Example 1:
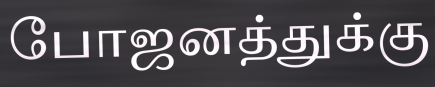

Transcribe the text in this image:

போஜனத்துக்கு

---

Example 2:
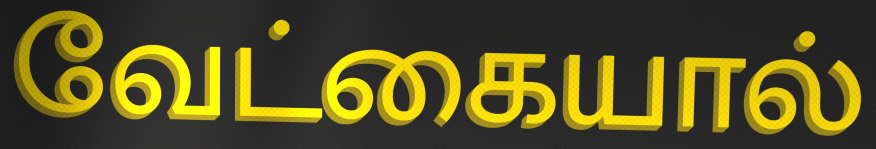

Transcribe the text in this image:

வேட்கையால்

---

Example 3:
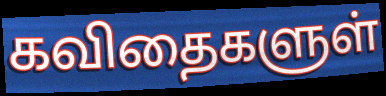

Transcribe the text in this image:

கவிதைகளுள்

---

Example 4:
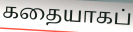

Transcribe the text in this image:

கதையாகப்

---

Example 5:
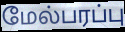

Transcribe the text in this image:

மேல்பரப்பு